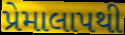
પ્રેમાલાપથી